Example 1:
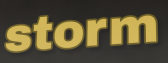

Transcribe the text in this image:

storm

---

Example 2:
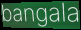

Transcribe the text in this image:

bangala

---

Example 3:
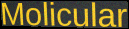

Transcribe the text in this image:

Molicular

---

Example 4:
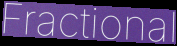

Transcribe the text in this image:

Fractional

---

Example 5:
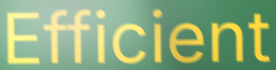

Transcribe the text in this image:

Efficient